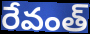
రేవంత్